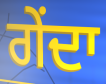
ਗੇਂਦਾ